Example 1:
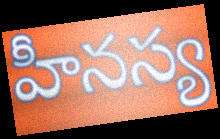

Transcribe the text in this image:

హీనస్య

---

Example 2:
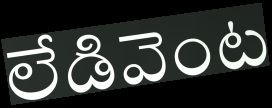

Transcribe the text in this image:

లేడివెంట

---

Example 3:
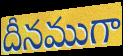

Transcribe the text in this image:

దీనముగా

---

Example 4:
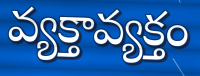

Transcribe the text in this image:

వ్యక్తావ్యక్తం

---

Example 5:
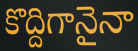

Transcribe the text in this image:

కొద్దిగానైనా